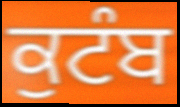
ਕੁਟੰਬ